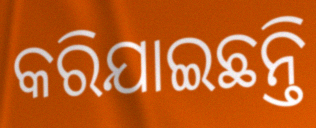
କରିଯାଇଛନ୍ତି